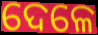
ଦେଳେ